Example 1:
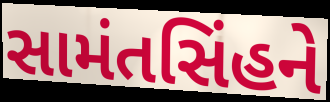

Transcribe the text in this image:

સામંતસિંહને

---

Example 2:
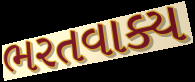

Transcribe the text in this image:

ભરતવાક્ય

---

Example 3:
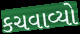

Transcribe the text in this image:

કચવાવ્યો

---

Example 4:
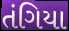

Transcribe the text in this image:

તંગિયા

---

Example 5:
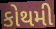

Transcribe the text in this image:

કોથમી